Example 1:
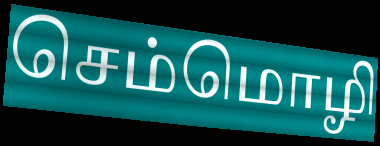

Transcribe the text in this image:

செம்மொழி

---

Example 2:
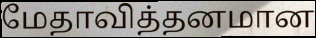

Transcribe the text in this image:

மேதாவித்தனமான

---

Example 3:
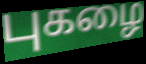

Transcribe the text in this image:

புகழை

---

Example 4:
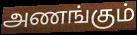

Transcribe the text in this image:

அணங்கும்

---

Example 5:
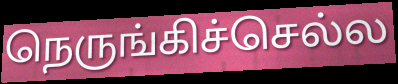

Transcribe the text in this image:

நெருங்கிச்செல்ல